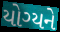
યોગ્યને